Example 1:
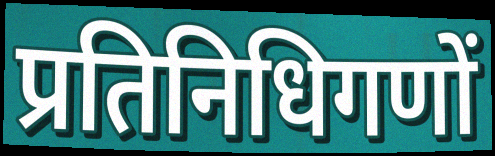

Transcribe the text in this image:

प्रतिनिधिगणों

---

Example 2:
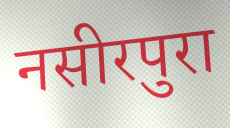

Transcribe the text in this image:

नसीरपुरा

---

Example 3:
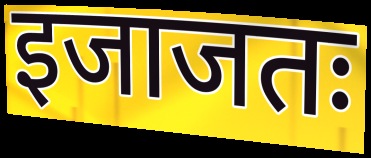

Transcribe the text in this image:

इजाजतः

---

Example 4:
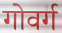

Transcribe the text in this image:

गोवर्ग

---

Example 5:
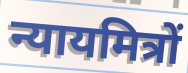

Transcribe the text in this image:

न्यायमित्रों